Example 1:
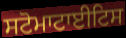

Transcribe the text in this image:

ਸਟੋਮਾਟਾਈਟਿਸ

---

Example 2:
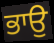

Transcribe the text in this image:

ਭਾਉ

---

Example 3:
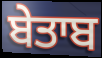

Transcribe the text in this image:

ਬੇਤਾਬ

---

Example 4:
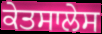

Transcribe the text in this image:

ਕੇਤਸਾਲੇਸ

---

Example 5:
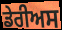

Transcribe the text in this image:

ਡੇਰੀਅਸ